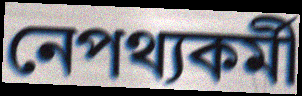
নেপথ্যকর্মী